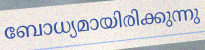
ബോധ്യമായിരിക്കുന്നു